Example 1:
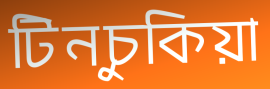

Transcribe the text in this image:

টিনচুকিয়া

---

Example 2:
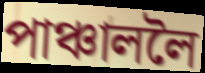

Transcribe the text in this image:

পাঞ্চাললৈ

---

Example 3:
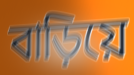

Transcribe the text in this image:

বাড়িয়ে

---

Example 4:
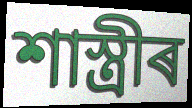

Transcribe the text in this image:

শাস্ত্ৰীৰ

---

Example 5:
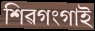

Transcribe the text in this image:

শিৱগংগাই